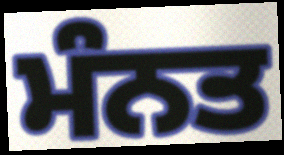
ਮੰਨਤ